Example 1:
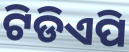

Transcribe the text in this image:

ଟିଡିଏପି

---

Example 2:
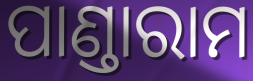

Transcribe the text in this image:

ପାଣ୍ଡାରାମ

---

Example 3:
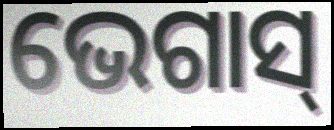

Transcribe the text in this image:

ଭେଗାସ୍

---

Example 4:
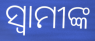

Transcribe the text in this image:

ସ୍ୱାମୀଙ୍କ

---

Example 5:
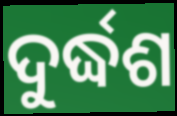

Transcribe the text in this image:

ଦୁର୍ଦ୍ଧଶ